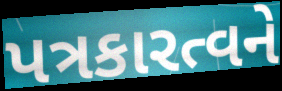
પત્રકારત્વને